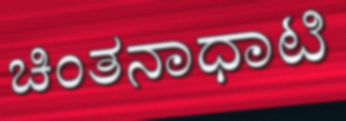
ಚಿಂತನಾಧಾಟಿ